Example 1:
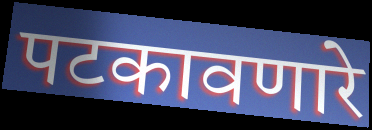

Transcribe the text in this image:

पटकावणारे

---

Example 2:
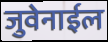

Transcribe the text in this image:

जुवेनाईल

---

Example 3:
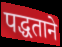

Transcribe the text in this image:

पद्धताने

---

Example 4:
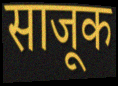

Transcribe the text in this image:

साजूक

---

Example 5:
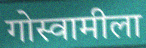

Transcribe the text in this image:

गोस्वामीला